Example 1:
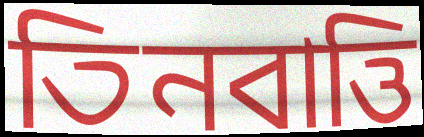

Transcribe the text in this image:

তিনবাত্তি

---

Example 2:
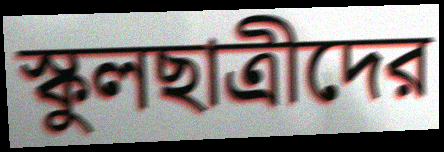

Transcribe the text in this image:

স্কুলছাত্রীদের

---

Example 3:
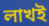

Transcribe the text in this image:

লাখই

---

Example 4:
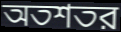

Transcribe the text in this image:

অতশতর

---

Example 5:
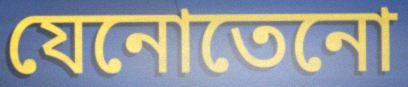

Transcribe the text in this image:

যেনোতেনো